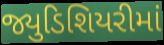
જ્યુડિશિયરીમાં